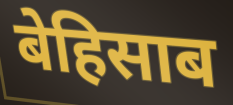
बेहिसाब